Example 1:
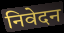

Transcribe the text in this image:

निवेदन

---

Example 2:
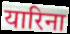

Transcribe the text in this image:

यारिना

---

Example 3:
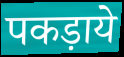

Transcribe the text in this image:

पकड़ाये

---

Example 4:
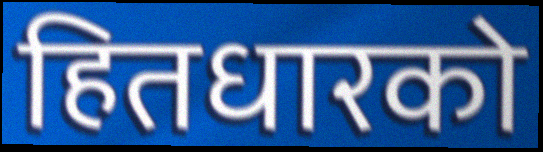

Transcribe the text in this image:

हितधारको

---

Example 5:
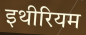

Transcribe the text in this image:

इथीरियम